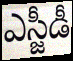
ఎస్జీడీ